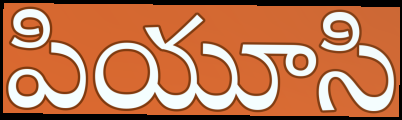
పియూసి